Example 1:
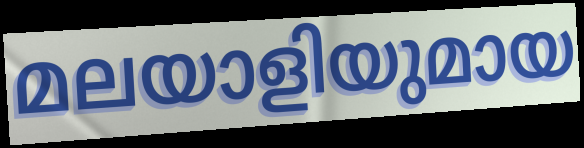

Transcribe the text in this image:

മലയാളിയുമായ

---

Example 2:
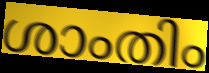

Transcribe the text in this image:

ശാംതിം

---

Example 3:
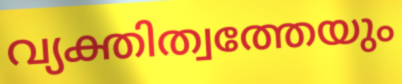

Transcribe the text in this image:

വ്യക്തിത്വത്തേയും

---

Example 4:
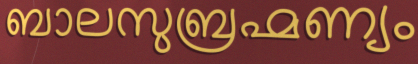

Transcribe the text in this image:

ബാലസുബ്രഹ്മണ്യം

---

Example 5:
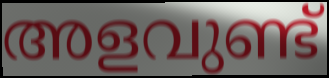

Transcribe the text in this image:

അളവുണ്ട്